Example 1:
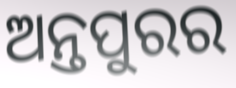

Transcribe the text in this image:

ଅନ୍ତପୁରର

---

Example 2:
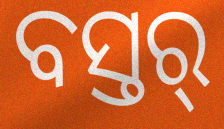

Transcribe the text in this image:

ବସ୍ତର୍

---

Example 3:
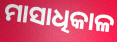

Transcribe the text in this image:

ମାସାଧିକାଳ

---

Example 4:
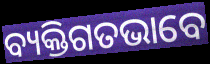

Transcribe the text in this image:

ବ୍ୟକ୍ତିଗତଭାବେ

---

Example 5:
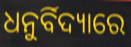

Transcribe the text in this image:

ଧନୁର୍ବିଦ୍ୟାରେ